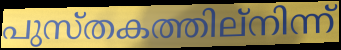
പുസ്തകത്തില്നിന്ന്